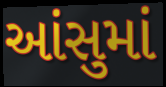
આંસુમાં